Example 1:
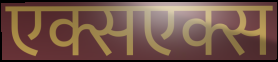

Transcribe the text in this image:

एक्सएक्स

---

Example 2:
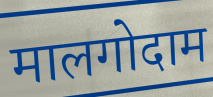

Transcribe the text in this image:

मालगोदाम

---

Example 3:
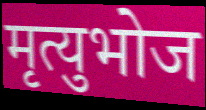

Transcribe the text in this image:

मृत्युभोज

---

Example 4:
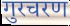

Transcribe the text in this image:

गुरचरण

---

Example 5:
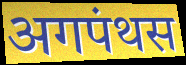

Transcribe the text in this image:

अगपंथस